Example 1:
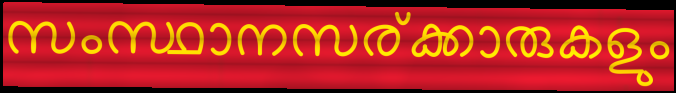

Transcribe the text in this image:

സംസ്ഥാനസര്ക്കാരുകളും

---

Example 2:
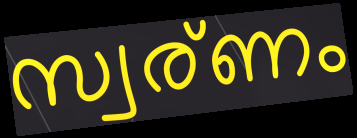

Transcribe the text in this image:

സ്വര്ണം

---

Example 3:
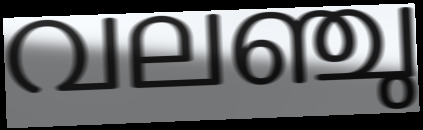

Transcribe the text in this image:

വലഞ്ചു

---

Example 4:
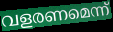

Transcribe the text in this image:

വളരണമെന്ന്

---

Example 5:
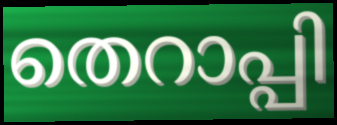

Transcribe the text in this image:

തെറാപ്പി